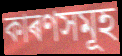
কাৰণসমূহ